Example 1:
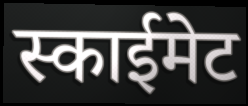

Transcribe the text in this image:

स्काईमेट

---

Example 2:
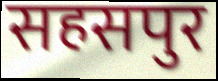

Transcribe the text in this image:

सहसपुर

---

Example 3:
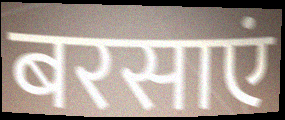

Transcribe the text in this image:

बरसाएं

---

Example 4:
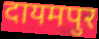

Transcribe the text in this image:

दायमपुर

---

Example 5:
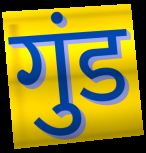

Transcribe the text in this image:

गुंड